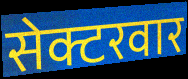
सेक्टरवार